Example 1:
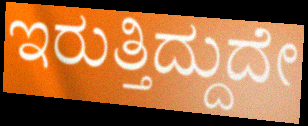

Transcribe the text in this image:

ಇರುತ್ತಿದ್ದುದೇ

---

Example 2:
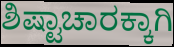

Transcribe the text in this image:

ಶಿಷ್ಟಾಚಾರಕ್ಕಾಗಿ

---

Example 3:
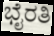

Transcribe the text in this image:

ಭೈರತಿ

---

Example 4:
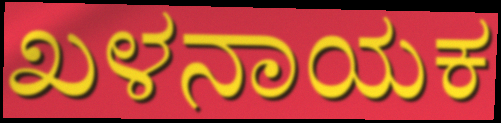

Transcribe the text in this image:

ಖಳನಾಯಕ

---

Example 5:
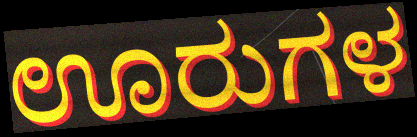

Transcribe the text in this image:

ಊರುಗಳ